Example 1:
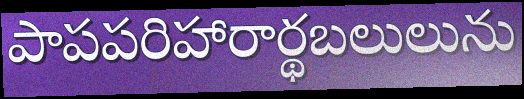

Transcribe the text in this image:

పాపపరిహారార్థబలులును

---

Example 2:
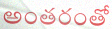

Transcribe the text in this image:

అంతరంతో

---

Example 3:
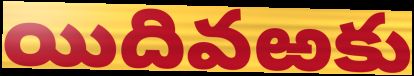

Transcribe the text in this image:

యిదివఱకు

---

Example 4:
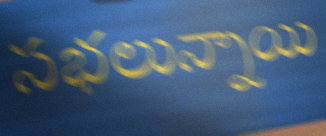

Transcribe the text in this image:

సభలున్నాయి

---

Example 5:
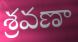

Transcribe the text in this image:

శ్రవణా